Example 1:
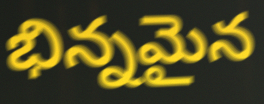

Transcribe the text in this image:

భిన్నమైన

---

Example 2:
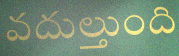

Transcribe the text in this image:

వదుల్తుంది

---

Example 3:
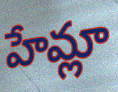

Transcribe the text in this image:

హేమ్లా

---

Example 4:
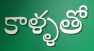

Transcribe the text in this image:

కాళ్ళతో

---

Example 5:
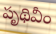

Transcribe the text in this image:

పృథివీం